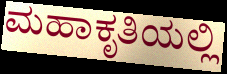
ಮಹಾಕೃತಿಯಲ್ಲಿ